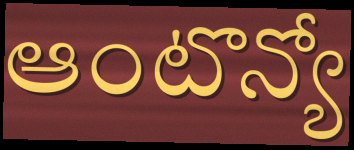
ఆంటొన్యో